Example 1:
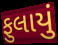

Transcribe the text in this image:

ફુલાયું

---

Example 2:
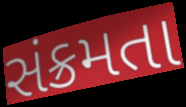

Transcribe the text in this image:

સંક્રમતા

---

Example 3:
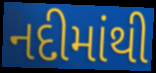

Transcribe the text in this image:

નદીમાંથી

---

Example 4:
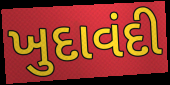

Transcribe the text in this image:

ખુદાવંદી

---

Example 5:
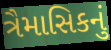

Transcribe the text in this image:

ત્રૈમાસિકનું